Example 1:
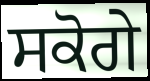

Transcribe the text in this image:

ਸਕੋਗੇ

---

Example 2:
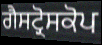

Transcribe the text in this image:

ਗੈਸਟ੍ਰੋਸਕੋਪ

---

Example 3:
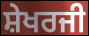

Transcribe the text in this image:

ਸ਼ੇਖਰਜੀ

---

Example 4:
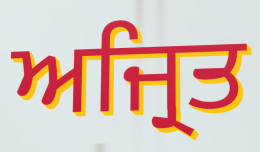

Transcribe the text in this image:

ਅਜ੍ਰਿਤ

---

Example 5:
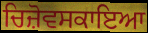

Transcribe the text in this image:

ਚਿਜ਼ੋਵਸਕਾਇਆ